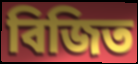
বিজিত